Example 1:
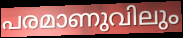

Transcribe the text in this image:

പരമാണുവിലും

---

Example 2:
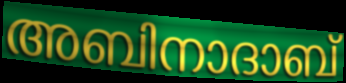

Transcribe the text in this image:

അബിനാദാബ്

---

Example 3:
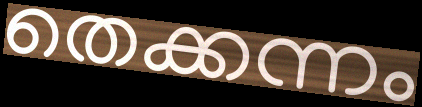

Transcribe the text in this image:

തെക്കന്നം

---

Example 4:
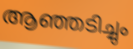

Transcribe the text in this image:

ആഞ്ഞടിച്ചും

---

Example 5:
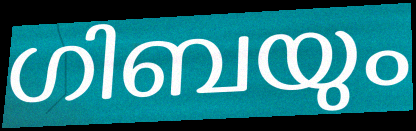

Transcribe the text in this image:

ഗിബയും